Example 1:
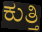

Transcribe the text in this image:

ಕುತ್ತಿ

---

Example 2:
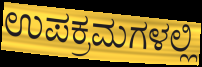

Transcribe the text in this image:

ಉಪಕ್ರಮಗಳಲ್ಲಿ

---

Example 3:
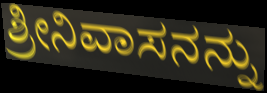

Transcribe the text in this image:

ಶ್ರೀನಿವಾಸನನ್ನು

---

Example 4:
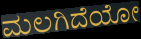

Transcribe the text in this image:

ಮಲಗಿದೆಯೋ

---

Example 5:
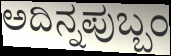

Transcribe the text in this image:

ಅದಿನ್ನಪುಬ್ಬಂ